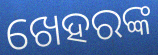
ଖେହରଙ୍କ